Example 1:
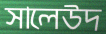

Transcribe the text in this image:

সালেউদ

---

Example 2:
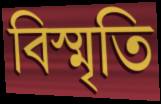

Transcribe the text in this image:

বিস্মৃতি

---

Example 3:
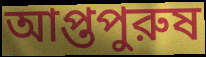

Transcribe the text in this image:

আপ্তপুরুষ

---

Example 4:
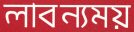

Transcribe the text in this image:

লাবন্যময়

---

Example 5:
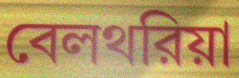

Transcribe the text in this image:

বেলথরিয়া